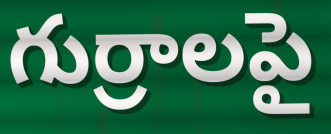
గుర్రాలపై